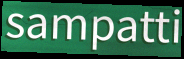
sampatti